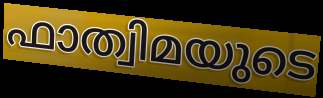
ഫാത്വിമയുടെ